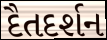
દૈતદર્શન